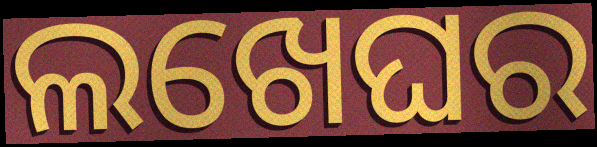
ଲଖେଘର